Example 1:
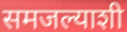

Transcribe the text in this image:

समजल्याशी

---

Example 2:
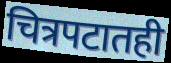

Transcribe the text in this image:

चित्रपटातही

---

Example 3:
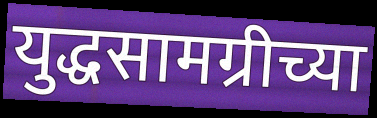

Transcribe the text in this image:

युद्धसामग्रीच्या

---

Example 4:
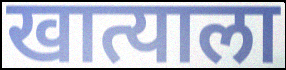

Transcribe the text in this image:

खात्याला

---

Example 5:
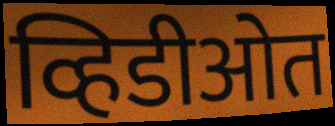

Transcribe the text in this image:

व्हिडीओत